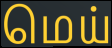
மெய்